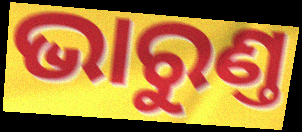
ଭାରୁଣ୍ତ